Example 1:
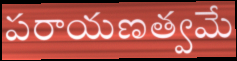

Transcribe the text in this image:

పరాయణత్వమే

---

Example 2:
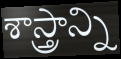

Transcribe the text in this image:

శాస్త్రాన్ని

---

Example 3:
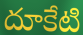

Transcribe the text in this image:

దూకేటి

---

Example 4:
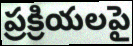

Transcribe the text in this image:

ప్రక్రియలపై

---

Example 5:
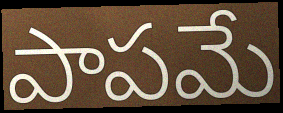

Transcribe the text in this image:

పాపమే